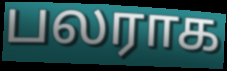
பலராக